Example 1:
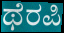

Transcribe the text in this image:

ಥೆರಪಿ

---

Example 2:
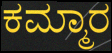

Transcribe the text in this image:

ಕಮ್ಮಾರ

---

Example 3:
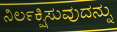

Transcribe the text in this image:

ನಿರ್ಲಕ್ಷಿಸುವುದನ್ನು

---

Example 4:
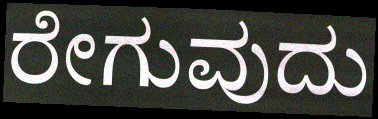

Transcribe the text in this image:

ರೇಗುವುದು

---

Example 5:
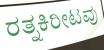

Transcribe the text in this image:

ರತ್ನಕಿರೀಟವು